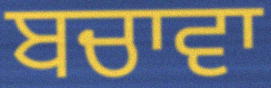
ਬਚਾਵਾ